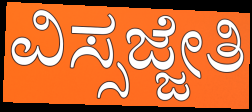
ವಿಸ್ಸಜ್ಜೇತಿ